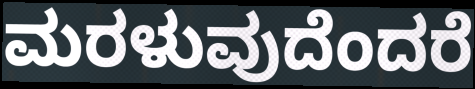
ಮರಳುವುದೆಂದರೆ